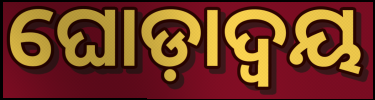
ଘୋଡ଼ାଦ୍ୱୟ